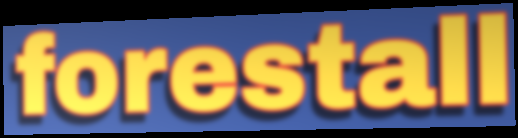
forestall